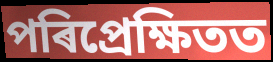
পৰিপ্ৰেক্ষিতত